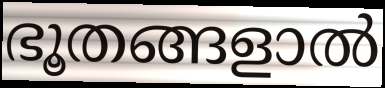
ഭൂതങ്ങളാൽ